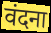
वंदना